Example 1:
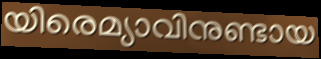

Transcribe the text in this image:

യിരെമ്യാവിനുണ്ടായ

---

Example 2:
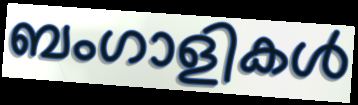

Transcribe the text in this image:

ബംഗാളികൾ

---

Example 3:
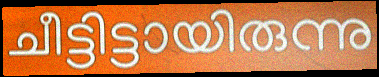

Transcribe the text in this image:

ചീട്ടിട്ടായിരുന്നു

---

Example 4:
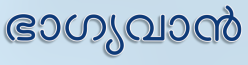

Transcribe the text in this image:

ഭാഗ്യവാൻ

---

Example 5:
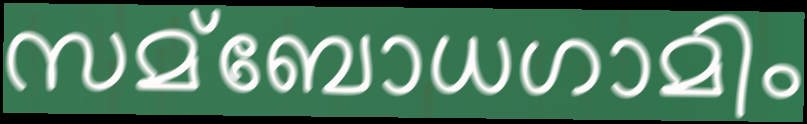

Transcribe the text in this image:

സമ്ബോധഗാമിം